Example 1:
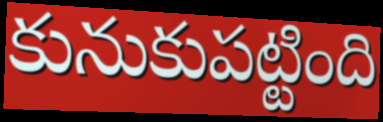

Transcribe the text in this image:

కునుకుపట్టింది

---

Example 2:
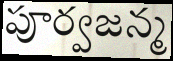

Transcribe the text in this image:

పూర్వజన్మ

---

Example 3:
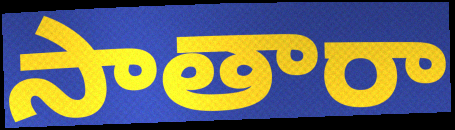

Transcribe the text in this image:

సాతారా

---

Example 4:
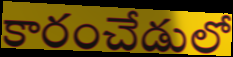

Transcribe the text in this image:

కారంచేడులో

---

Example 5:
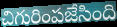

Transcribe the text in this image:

చిగురింపజేసింది